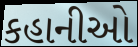
કહાનીઓ